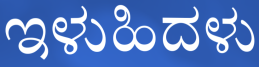
ಇಳುಹಿದಳು